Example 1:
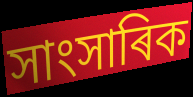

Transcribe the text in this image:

সাংসাৰিক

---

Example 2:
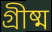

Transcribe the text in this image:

গ্ৰীষ্ম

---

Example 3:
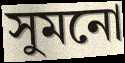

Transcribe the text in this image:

সুমনো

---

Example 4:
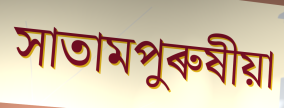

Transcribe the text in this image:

সাতামপুৰুষীয়া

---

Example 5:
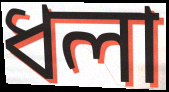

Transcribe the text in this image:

ধলা